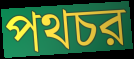
পথচর